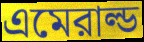
এমেরাল্ড